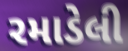
રમાડેલી